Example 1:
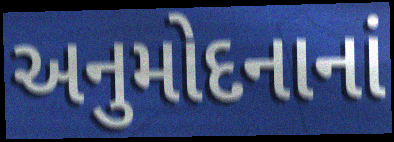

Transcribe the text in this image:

અનુમોદનાનાં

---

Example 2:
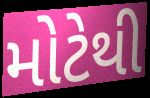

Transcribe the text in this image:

મોટેથી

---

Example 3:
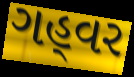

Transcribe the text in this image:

ગહ્‌વર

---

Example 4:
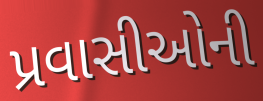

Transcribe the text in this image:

પ્રવાસીઓની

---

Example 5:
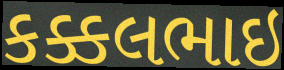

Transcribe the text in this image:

કક્કલભાઇ